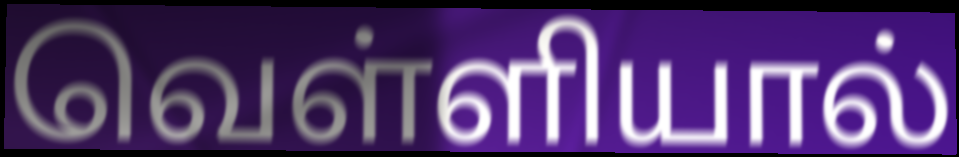
வெள்ளியால்